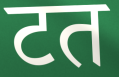
टत